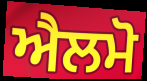
ਐਲਮੋ